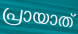
പ്രായാത്